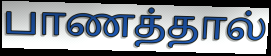
பாணத்தால்